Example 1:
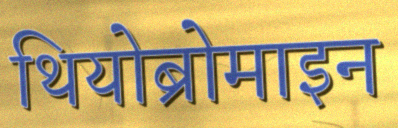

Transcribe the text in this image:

थियोब्रोमाइन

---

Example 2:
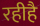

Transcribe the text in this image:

रहीहै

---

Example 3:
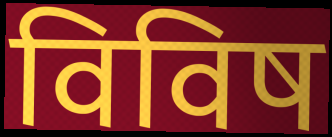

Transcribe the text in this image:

विविष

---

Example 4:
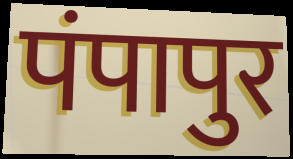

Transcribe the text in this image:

पंपापुर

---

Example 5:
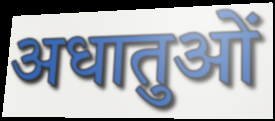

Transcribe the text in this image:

अधातुओं